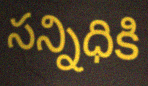
సన్నిధికి